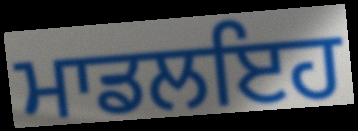
ਮਾਡਲਇਹ